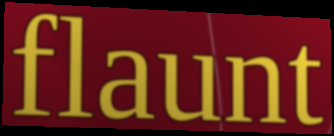
flaunt